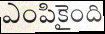
ఎంపికైంది